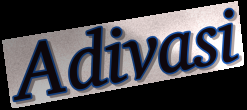
Adivasi